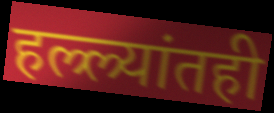
हल्ल्यांतही